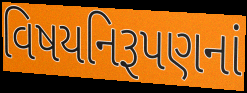
વિષયનિરૂપણનાં